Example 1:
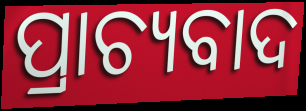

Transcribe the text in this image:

ପ୍ରାଚ୍ୟବାଦ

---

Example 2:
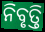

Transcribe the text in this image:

ନିବୃତ୍ତି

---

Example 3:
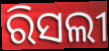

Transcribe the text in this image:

ରିସଲୀ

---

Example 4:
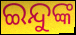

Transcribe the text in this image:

ଇନ୍ଦୁଙ୍କ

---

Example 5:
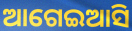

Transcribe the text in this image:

ଆଗେଇଆସି